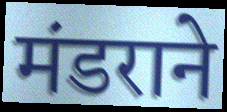
मंडराने